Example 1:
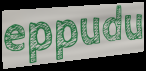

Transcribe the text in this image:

eppudu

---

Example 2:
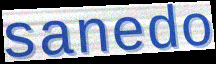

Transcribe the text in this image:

sanedo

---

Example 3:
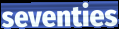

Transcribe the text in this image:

seventies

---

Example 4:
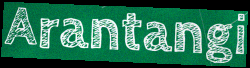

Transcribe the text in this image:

Arantangi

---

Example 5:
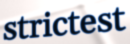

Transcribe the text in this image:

strictest